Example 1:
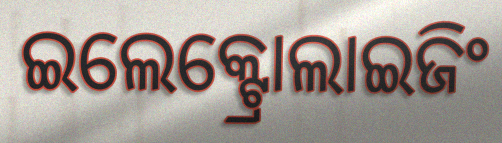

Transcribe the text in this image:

ଇଲେକ୍ଟ୍ରୋଲାଇଜିଂ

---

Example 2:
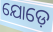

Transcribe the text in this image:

ଯୋଡ଼େ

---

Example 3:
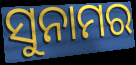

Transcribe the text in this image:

ସୁନାମର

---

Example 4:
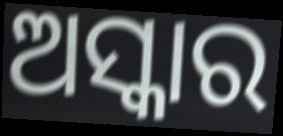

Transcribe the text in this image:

ଅସ୍କାର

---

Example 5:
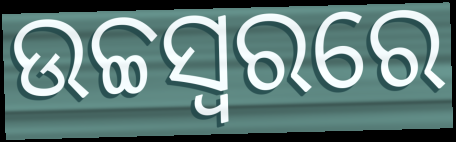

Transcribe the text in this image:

ଉଚ୍ଚସ୍ଵରରେ